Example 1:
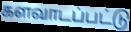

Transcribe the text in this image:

களவாடப்பட்டு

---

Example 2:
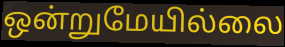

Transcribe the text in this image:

ஒன்றுமேயில்லை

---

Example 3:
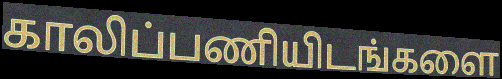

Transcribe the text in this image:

காலிப்பணியிடங்களை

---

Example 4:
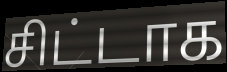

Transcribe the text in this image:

சிட்டாக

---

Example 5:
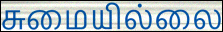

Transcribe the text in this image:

சுமையில்லை